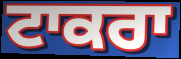
ਟਾਕਰਾ